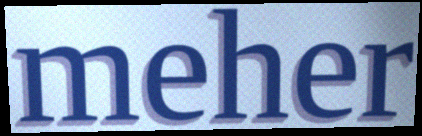
meher